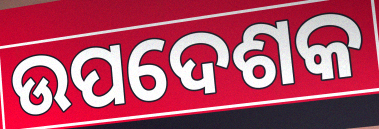
ଉପଦେଶକ